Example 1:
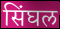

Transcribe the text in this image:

सिंघल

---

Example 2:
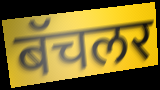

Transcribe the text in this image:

बॅचलर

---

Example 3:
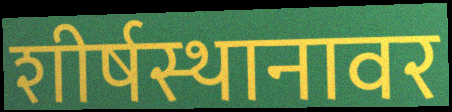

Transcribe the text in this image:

शीर्षस्थानावर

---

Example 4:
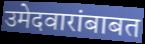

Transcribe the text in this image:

उमेदवारांबाबत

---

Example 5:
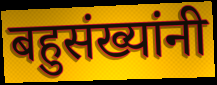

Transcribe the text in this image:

बहुसंख्यांनी